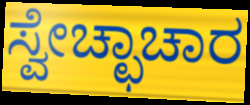
ಸ್ವೇಚ್ಛಾಚಾರ